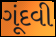
ગૂંદવી